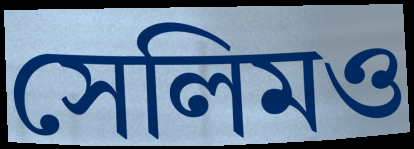
সেলিমও